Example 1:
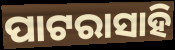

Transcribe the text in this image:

ପାଟରାସାହି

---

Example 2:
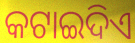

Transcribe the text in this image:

କଟାଇଦିଏ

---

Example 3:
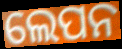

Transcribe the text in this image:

ଲେପନ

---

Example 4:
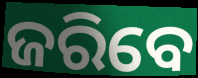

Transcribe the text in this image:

ଜରିବେ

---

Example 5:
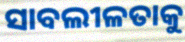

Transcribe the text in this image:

ସାବଲୀଳତାକୁ